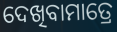
ଦେଖିବାମାତ୍ରେ